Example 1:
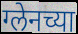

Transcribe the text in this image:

ग्लेनच्या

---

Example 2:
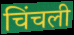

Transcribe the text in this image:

चिंचली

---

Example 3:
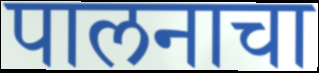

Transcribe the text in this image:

पालनाचा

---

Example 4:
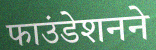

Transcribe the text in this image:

फाउंडेशनने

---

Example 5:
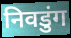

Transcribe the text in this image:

निवडुंग